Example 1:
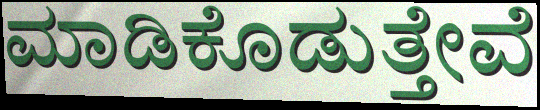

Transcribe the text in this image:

ಮಾಡಿಕೊಡುತ್ತೇವೆ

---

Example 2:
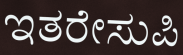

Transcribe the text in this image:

ಇತರೇಸುಪಿ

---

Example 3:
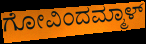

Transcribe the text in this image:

ಗೋವಿಂದಮ್ಮಾಳ್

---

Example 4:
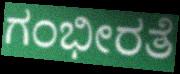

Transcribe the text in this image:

ಗಂಭೀರತೆ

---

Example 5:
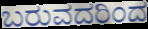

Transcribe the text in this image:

ಬರುವದರಿಂದ